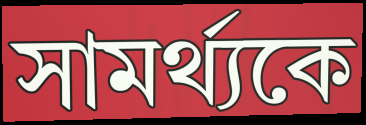
সামর্থ্যকে